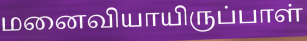
மனைவியாயிருப்பாள்